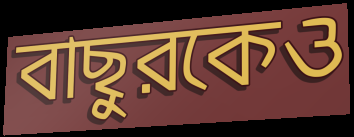
বাছুরকেও